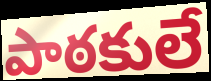
పాఠకులే